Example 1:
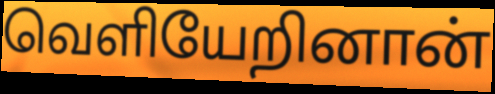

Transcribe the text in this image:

வெளியேறினான்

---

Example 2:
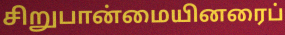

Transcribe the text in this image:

சிறுபான்மையினரைப்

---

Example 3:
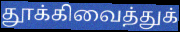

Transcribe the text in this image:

தூக்கிவைத்துக்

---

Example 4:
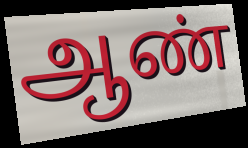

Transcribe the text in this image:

ஆண்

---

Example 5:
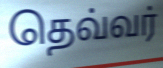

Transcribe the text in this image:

தெவ்வர்